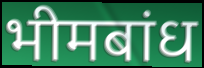
भीमबांध